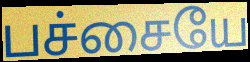
பச்சையே